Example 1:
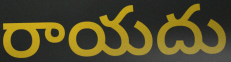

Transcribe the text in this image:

రాయదు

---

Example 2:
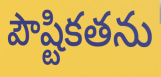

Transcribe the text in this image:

పౌష్టికతను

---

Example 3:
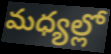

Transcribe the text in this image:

మధ్యల్లో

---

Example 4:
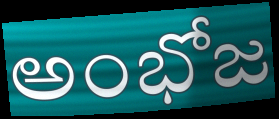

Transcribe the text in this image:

అంభోజ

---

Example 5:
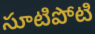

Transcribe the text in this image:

సూటిపోటి